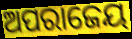
ଅପରାଜେୟ